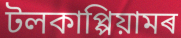
টলকাপ্পিয়ামৰ